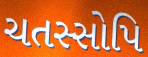
ચતસ્સોપિ